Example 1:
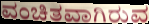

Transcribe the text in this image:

ವಂಚಿತವಾಗಿರುವ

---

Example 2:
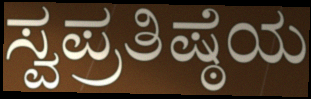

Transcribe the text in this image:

ಸ್ವಪ್ರತಿಷ್ಠೆಯ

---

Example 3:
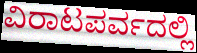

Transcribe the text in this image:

ವಿರಾಟಪರ್ವದಲ್ಲಿ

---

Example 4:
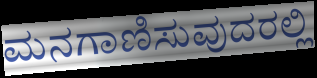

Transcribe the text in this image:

ಮನಗಾಣಿಸುವುದರಲ್ಲಿ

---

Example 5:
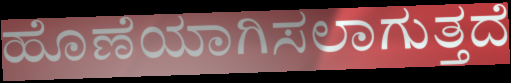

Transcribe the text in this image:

ಹೊಣೆಯಾಗಿಸಲಾಗುತ್ತದೆ